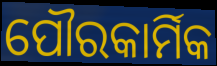
ପୌରକାର୍ମିକ